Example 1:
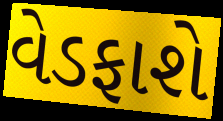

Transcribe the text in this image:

વેડફાશે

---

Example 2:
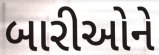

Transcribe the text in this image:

બારીઓને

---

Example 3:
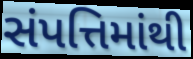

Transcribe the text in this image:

સંપત્તિમાંથી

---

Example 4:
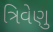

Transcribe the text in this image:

ત્રિવેણુ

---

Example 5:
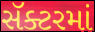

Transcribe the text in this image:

સૅક્ટરમાં